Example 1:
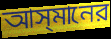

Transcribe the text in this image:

আস্‌মানের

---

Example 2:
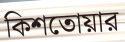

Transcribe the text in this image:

কিশতোয়ার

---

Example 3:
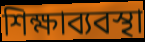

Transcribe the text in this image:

শিক্ষাব্যবস্থা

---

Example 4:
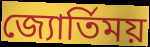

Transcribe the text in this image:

জ্যোর্তিময়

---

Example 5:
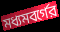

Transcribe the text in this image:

মধ্যমবর্গের